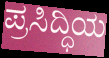
ಪ್ರಸಿದ್ಧಿಯ